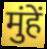
मुंहें